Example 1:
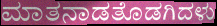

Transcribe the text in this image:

ಮಾತನಾಡತೊಡಗಿದಳು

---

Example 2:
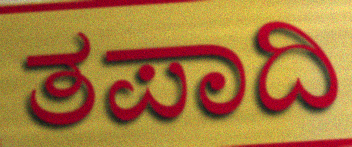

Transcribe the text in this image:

ತಪಾದಿ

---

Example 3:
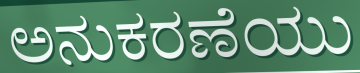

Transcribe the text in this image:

ಅನುಕರಣೆಯು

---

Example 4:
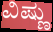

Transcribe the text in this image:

ವಿಷ್ಣು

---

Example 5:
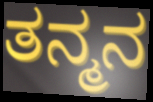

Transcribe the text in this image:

ತನ್ಮನ